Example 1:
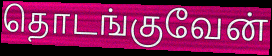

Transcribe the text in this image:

தொடங்குவேன்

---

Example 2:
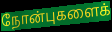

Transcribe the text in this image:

நோன்புகளைக்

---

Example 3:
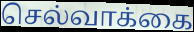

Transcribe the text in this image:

செல்வாக்கை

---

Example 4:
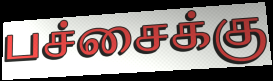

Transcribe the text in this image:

பச்சைக்கு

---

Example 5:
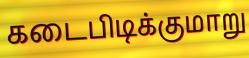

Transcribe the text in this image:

கடைபிடிக்குமாறு